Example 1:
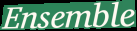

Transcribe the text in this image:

Ensemble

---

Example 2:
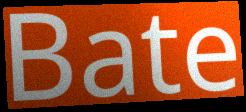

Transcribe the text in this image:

Bate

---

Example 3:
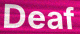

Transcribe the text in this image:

Deaf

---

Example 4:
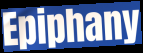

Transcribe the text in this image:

Epiphany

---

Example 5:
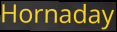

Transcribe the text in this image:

Hornaday